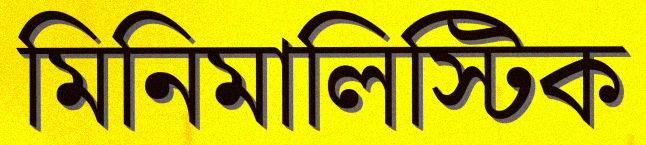
মিনিমালিস্টিক